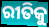
ରୀତିକୁ